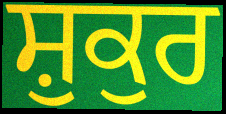
ਸ਼ੁਕੁਰ